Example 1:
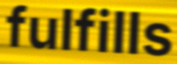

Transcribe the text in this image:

fulfills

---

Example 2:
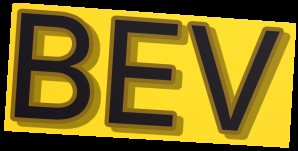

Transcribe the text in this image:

BEV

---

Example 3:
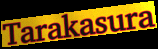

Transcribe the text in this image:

Tarakasura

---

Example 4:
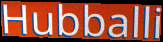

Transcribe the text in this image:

Hubballi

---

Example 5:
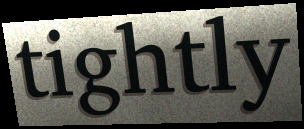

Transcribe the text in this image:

tightly